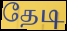
தேடி